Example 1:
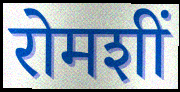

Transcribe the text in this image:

रोमशीं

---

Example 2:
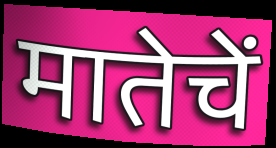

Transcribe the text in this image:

मातेचें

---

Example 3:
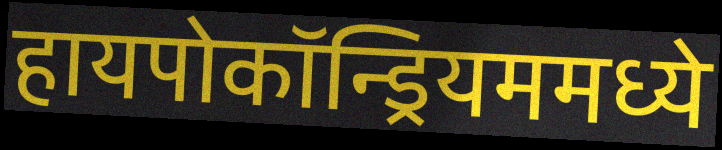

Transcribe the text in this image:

हायपोकॉन्ड्रियममध्ये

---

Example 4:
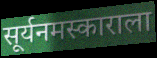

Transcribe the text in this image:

सूर्यनमस्काराला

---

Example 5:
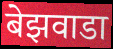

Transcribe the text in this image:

बेझवाडा